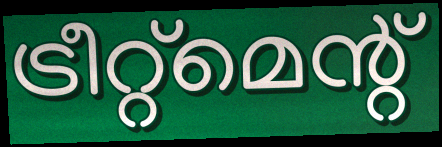
ട്രീറ്റ്മെന്റ്